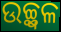
ଉଚ୍ଛ୍ୱଳ